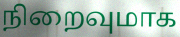
நிறைவுமாக